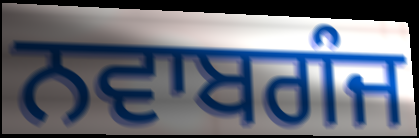
ਨਵਾਬਗੰਜ